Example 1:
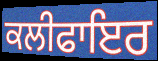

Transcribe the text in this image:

ਕਲੀਫਾਇਰ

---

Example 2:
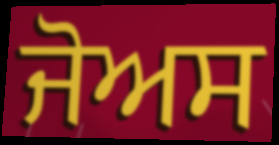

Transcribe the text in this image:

ਜੋਅਸ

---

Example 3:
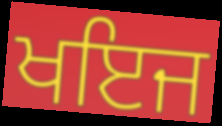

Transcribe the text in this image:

ਖਇਜ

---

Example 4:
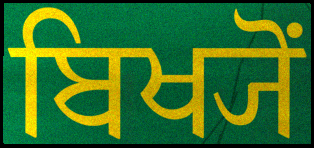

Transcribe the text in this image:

ਬਿਖ੍ਯੋਂ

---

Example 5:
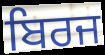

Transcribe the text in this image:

ਬਿਰਜ